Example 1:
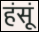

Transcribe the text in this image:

हंसूं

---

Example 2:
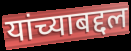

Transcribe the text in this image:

यांच्याबद्दल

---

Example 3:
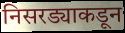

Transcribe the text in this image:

निसरड्याकडून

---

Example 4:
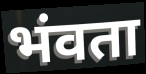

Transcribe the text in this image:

भंवता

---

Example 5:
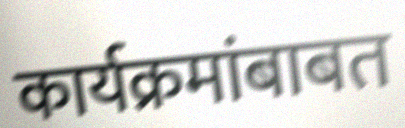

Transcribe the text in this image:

कार्यक्रमांबाबत